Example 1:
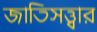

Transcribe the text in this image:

জাতিসত্ত্বার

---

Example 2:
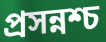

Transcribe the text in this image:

প্রসন্নশ্চ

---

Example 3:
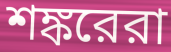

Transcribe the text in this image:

শঙ্করেরা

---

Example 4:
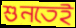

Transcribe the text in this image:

শুনতেই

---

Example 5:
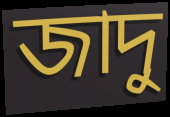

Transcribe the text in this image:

জাদু